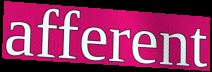
afferent